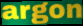
argon